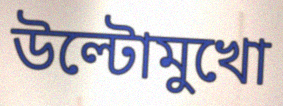
উল্টোমুখো